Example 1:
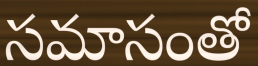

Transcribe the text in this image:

సమాసంతో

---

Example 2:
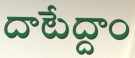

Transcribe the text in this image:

దాటేద్దాం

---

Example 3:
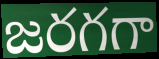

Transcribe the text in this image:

జరగగా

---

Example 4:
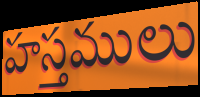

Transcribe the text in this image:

హస్తములు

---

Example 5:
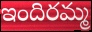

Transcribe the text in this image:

ఇందిరమ్మ